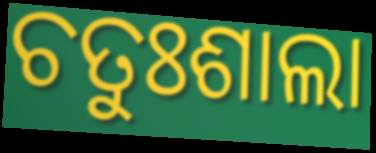
ଚତୁଃଶାଲା